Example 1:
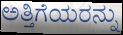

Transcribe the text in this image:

ಅತ್ತಿಗೆಯರನ್ನು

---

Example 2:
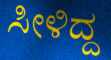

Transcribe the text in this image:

ಸೀಳಿದ್ದ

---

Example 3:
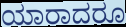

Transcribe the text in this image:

ಯಾರಾದರೂ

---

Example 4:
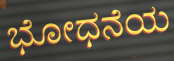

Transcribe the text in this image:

ಭೋಧನೆಯ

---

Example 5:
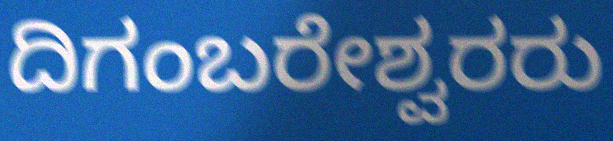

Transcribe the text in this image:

ದಿಗಂಬರೇಶ್ವರರು